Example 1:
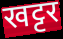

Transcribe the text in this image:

खट्टर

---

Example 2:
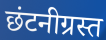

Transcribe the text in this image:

छंटनीग्रस्त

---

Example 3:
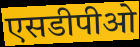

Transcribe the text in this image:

एसडीपीओ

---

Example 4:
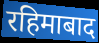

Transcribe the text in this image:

रहिमाबाद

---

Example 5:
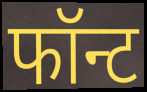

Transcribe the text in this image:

फॉन्ट